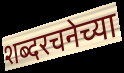
शब्दरचनेच्या